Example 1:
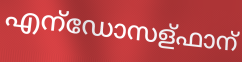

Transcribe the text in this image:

എന്ഡോസള്ഫാന്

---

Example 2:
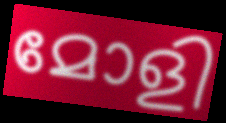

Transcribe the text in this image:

മോളി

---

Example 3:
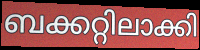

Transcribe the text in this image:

ബക്കറ്റിലാക്കി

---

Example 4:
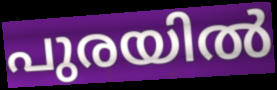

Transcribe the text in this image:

പുരയിൽ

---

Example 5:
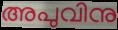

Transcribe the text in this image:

അപുവിനു